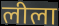
लीला